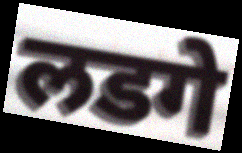
लडगे